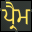
ਪ੍ਰੈਮ